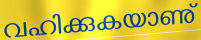
വഹിക്കുകയാണു്